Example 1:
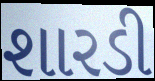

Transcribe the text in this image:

શારડી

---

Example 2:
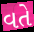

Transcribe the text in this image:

વતે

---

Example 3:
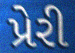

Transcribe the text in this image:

પ્રેરી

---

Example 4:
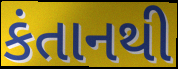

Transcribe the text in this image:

કંતાનથી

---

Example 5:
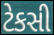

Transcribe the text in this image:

ટેકસી